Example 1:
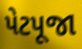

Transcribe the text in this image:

પેટપૂજા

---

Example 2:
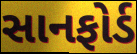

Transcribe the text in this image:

સાનફોર્ડ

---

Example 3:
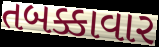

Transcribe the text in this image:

તબક્કાવાર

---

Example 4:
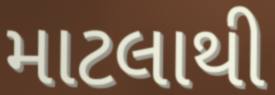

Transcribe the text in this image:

માટલાથી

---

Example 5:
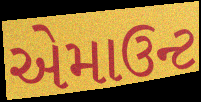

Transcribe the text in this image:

એમાઉન્ટ